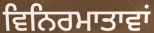
ਵਿਨਿਰਮਾਤਾਵਾਂ